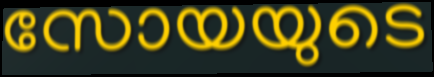
സോയയുടെ